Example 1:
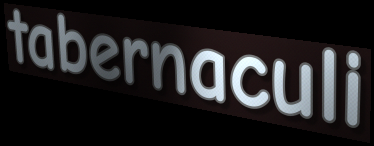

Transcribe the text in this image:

tabernaculi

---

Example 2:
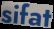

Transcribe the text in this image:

sifat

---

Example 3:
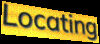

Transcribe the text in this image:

Locating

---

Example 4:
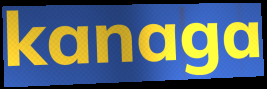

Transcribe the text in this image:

kanaga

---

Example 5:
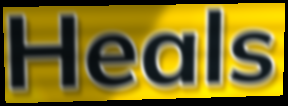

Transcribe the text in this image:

Heals